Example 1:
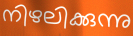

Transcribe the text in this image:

നിഴലിക്കുന്നു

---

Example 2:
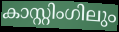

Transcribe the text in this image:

കാസ്റ്റിംഗിലും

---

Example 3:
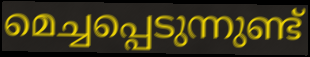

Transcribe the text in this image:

മെച്ചപ്പെടുന്നുണ്ട്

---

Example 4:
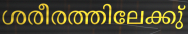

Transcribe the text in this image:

ശരീരത്തിലേക്കു്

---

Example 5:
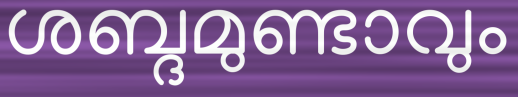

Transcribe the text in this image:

ശബ്ദമുണ്ടാവും